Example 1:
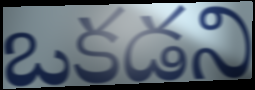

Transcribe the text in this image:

ఒకడని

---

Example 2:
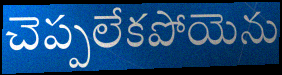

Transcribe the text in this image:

చెప్పలేకపోయెను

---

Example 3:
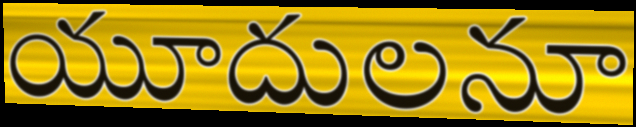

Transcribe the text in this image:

యూదులనూ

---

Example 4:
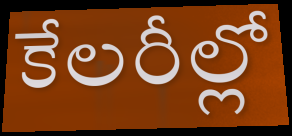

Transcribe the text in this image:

కేలరీల్లో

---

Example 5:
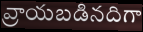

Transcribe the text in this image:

వ్రాయబడినదిగా